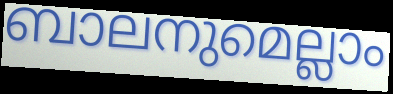
ബാലനുമെല്ലാം